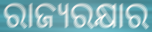
ରାଜ୍ୟରକ୍ଷାର